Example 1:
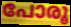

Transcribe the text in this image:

പോരൂ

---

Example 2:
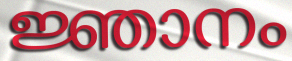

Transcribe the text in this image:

ജ്ഞാനം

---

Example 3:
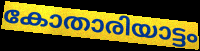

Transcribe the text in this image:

കോതാരിയാട്ടം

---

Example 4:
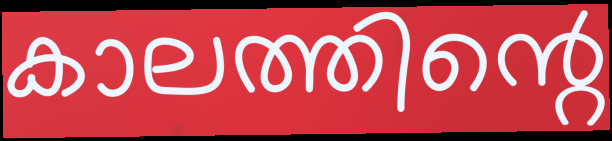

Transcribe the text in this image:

കാലത്തിന്റെ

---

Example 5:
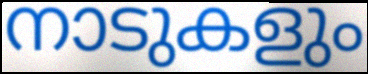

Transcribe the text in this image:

നാടുകളും